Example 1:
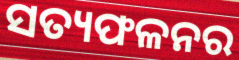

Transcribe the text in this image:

ସତ୍ୟଫଳନର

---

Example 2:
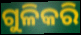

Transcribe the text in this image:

ଗୁଳିକରି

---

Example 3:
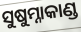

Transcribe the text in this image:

ସୁଷୁମ୍ନାକାଣ୍ଡ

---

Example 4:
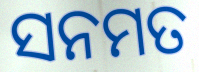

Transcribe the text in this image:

ସନମତ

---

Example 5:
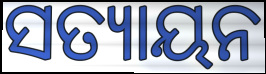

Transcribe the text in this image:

ସତ୍ୟାୟନ